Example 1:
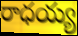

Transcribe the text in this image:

రాధయ్య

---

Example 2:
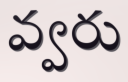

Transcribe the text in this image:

వ్వరు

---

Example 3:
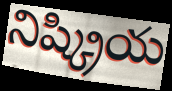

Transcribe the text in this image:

నిష్క్రియ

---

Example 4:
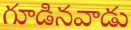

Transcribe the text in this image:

గూడినవాడు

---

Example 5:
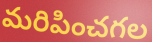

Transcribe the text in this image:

మరిపించగల